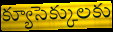
క్యూసెక్కులకు